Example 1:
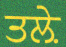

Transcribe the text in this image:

ਤਲ਼ੇ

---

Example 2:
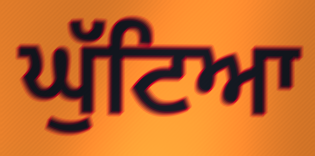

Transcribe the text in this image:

ਘੁੱਟਿਆ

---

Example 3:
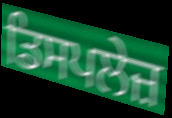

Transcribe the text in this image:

ਡਿਸਪਲੇਜ਼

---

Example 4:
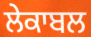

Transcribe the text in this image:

ਲੇਕਾਬਲ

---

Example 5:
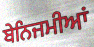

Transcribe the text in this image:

ਬੇਨਿਜਮੀਆਂ